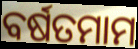
ବର୍ଷତମାମ